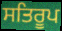
ਸਤਿਰੂਪ